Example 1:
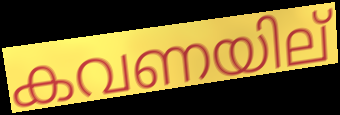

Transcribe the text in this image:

കവണയില്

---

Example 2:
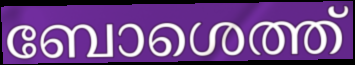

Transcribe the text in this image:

ബോശെത്ത്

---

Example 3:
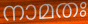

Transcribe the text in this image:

നാമതഃ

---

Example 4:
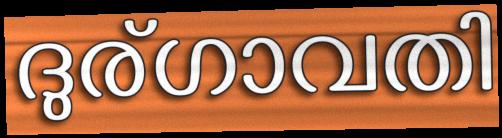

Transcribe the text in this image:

ദുര്ഗാവതി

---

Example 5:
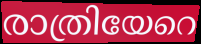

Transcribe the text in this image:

രാത്രിയേറെ